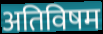
अतिविषम